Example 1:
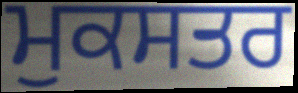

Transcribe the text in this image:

ਮੁਕਸਤਰ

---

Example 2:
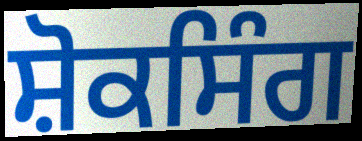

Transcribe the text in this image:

ਸ਼ੋਕਸਿੰਗ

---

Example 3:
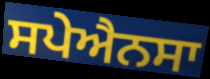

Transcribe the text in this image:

ਸਪੇਐਨਸਾ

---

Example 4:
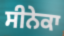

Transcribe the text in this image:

ਸੀਨੇਕਾ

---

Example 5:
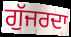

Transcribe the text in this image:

ਗੁੱਜਰਦਾ